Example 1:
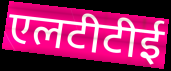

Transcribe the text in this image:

एलटीटीई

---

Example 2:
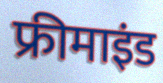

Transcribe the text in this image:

फ्रीमाइंड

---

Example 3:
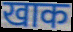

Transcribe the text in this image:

खाक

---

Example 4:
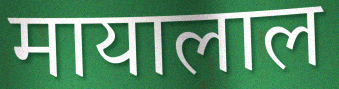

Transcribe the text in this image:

मायालाल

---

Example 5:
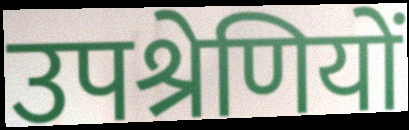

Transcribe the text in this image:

उपश्रेणियों